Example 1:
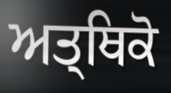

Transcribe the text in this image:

ਅਤ੍ਥਿਕੋ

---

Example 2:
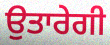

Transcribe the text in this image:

ਉਤਾਰੇਗੀ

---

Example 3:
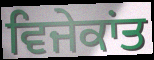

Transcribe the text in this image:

ਵਿਜੇਕਾਂਤ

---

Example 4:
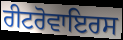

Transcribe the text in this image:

ਰੀਟਰੋਵਾਇਰਸ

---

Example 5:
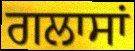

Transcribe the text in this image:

ਗਲਾਸਾਂ